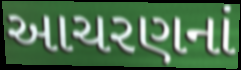
આચરણનાં